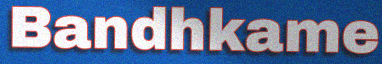
Bandhkame